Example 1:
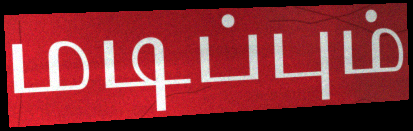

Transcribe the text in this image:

மடிப்பும்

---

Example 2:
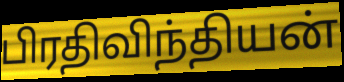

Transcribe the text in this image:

பிரதிவிந்தியன்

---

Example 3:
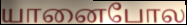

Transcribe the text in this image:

யானைபோல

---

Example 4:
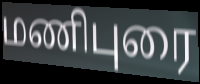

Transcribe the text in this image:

மணிபுரை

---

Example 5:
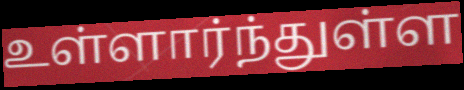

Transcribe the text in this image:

உள்ளார்ந்துள்ள